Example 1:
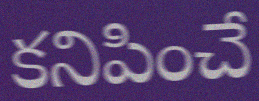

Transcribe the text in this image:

కనిపించే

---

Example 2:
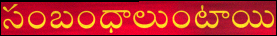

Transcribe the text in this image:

సంబంధాలుంటాయి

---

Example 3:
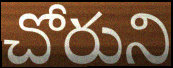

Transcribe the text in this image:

చోరుని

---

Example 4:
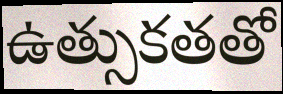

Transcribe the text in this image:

ఉత్సుకతతో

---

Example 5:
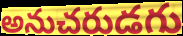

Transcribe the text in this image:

అనుచరుడగు